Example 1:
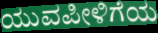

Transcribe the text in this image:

ಯುವಪೀಳಿಗೆಯ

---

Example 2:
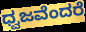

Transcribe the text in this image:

ಧ್ವಜವೆಂದರೆ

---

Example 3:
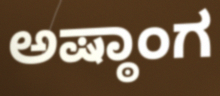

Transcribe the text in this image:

ಅಷ್ಠಾಂಗ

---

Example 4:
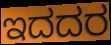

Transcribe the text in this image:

ಇದದರ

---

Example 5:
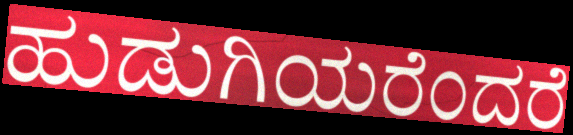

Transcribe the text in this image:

ಹುಡುಗಿಯರೆಂದರೆ